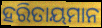
ହରିତାୟମାନ